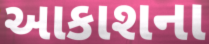
આકાશના